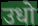
उधो